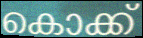
കൊക്ക്